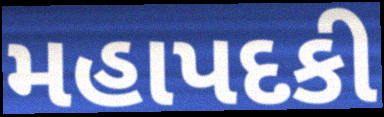
મહાપદકી